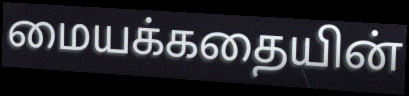
மையக்கதையின்